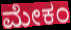
ಮೇಕಂ